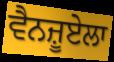
ਵੈਨਜ਼ੂਏਲਾ